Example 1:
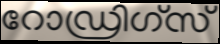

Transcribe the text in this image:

റോഡ്രിഗ്സ്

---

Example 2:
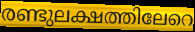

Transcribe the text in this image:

രണ്ടുലക്ഷത്തിലേറെ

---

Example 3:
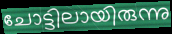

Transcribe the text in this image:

ചോട്ടിലായിരുന്നു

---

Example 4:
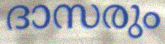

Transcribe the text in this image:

ദാസരും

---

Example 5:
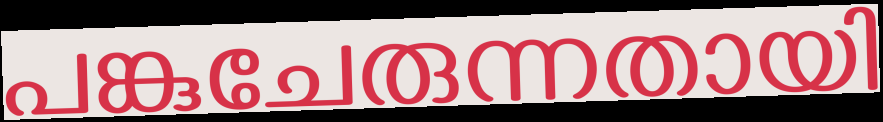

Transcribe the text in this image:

പങ്കുചേരുന്നതായി